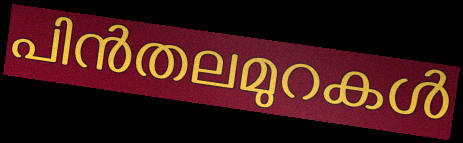
പിൻതലമുറകൾ